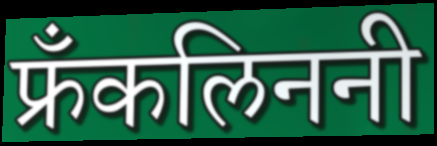
फ्रँकलिननी